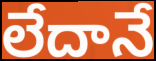
లేదానే